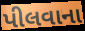
પીલવાના